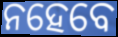
ନହେବେ